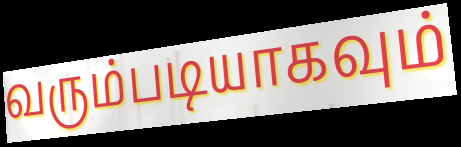
வரும்படியாகவும்